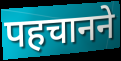
पहचानने